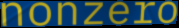
nonzero